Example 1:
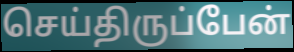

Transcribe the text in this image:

செய்திருப்பேன்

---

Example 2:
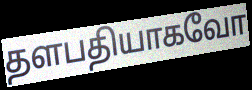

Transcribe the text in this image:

தளபதியாகவோ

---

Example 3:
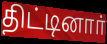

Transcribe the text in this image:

திட்டினார்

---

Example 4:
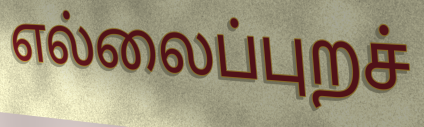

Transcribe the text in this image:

எல்லைப்புறச்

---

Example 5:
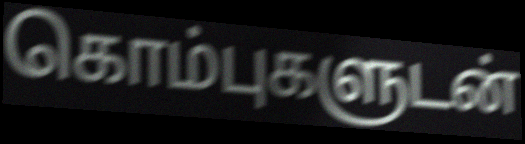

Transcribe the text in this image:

கொம்புகளுடன்